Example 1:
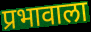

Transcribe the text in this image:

प्रभावाला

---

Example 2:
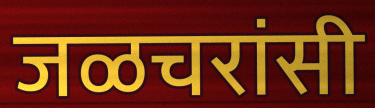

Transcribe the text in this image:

जळचरांसी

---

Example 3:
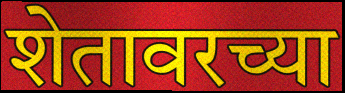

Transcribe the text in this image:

शेतावरच्या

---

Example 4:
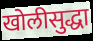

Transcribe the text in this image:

खोलीसुद्धा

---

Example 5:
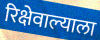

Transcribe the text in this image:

रिक्षेवाल्याला